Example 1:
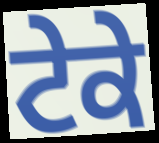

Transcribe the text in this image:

ਟੇਕੇ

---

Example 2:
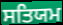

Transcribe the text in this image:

ਸਤਿਯਮ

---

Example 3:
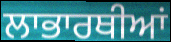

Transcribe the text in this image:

ਲਾਭਾਰਥੀਆਂ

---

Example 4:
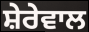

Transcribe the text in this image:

ਸ਼ੇਰੇਵਾਲ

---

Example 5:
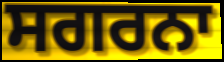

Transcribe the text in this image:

ਸਗਰਨਾ